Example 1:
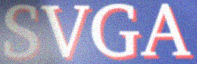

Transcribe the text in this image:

SVGA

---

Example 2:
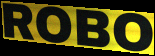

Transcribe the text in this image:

ROBO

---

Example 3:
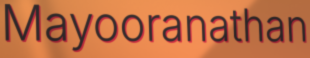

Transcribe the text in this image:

Mayooranathan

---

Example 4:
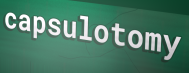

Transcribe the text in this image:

capsulotomy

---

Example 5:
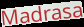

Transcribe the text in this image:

Madrasa